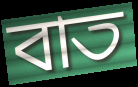
বাত